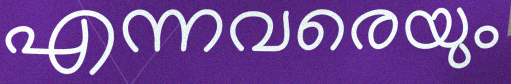
എന്നവരെയും